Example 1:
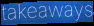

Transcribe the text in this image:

takeaways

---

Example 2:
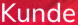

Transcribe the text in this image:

Kunde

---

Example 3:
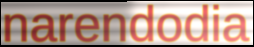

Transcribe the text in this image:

narendodia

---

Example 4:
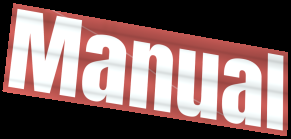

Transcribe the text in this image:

Manual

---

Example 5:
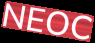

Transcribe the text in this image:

NEOC